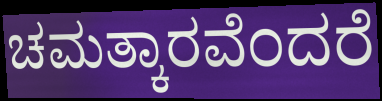
ಚಮತ್ಕಾರವೆಂದರೆ